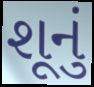
શૂનું